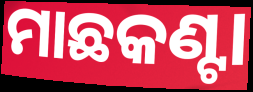
ମାଛକଣ୍ଟା